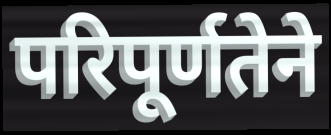
परिपूर्णतेने